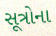
સૂત્રોના